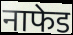
नाफेड